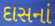
દાસનાં